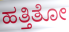
ಹತ್ತಿತೋ